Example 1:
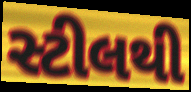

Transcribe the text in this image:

સ્ટીલથી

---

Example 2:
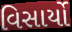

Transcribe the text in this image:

વિસાર્યો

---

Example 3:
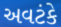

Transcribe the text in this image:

અવટંકે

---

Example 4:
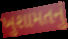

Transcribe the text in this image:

ખુશામતનું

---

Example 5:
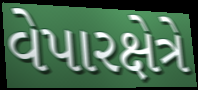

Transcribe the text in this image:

વેપારક્ષેત્રે